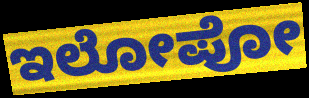
ಇಲೋಪೋ